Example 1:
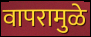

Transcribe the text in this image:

वापरामुळे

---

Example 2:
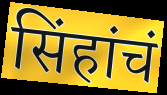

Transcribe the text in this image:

सिंहांचं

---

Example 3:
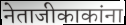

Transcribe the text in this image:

नेताजीकाकांना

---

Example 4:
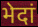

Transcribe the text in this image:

भेदां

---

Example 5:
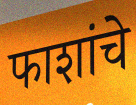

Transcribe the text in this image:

फाशांचे